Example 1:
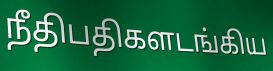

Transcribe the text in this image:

நீதிபதிகளடங்கிய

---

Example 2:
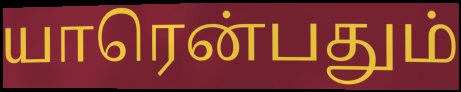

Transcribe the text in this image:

யாரென்பதும்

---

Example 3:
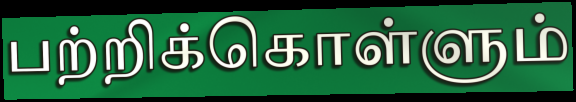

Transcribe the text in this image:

பற்றிக்கொள்ளும்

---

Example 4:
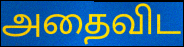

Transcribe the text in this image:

அதைவிட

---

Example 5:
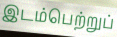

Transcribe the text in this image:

இடம்பெற்றுப்